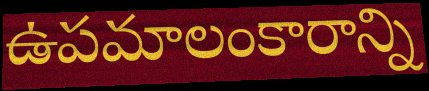
ఉపమాలంకారాన్ని